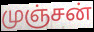
முஞ்சன்